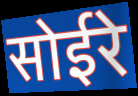
सोईरे